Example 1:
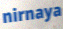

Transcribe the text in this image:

nirnaya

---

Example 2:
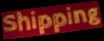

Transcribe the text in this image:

Shipping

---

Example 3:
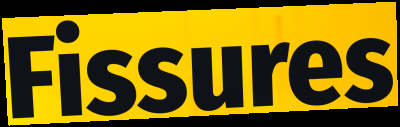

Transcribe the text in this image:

Fissures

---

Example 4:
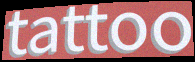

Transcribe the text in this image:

tattoo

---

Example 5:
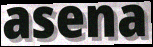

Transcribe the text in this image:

asena